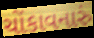
ચોંકાવનારું